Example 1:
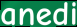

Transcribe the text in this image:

anedi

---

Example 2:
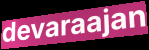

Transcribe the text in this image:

devaraajan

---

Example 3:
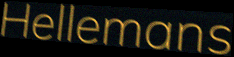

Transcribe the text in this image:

Hellemans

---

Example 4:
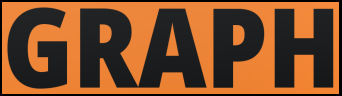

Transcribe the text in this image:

GRAPH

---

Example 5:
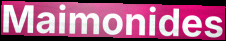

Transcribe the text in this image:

Maimonides